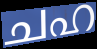
ചഹ